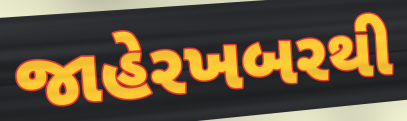
જાહેરખબરથી